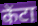
केंटा